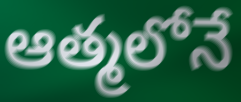
ఆత్మలోనే